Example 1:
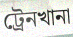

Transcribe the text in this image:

ট্রেনখানা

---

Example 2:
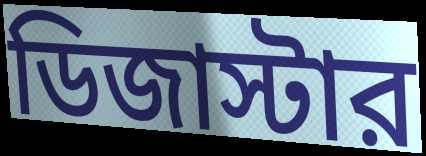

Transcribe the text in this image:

ডিজাস্টার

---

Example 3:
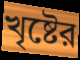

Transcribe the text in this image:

খৃষ্টের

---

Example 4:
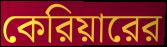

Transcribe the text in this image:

কেরিয়ারের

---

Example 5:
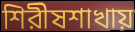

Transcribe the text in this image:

শিরীষশাখায়